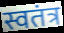
स्‍वतंत्र